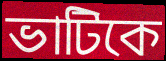
ভাটিকে